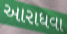
આરાધવા